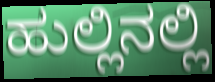
ಹುಲ್ಲಿನಲ್ಲಿ